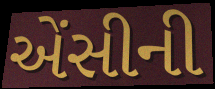
એંસીની